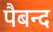
पैबन्द